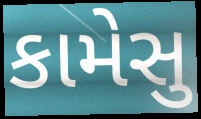
કામેસુ